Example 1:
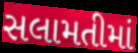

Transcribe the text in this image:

સલામતીમાં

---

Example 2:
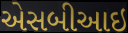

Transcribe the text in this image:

એસબીઆઇ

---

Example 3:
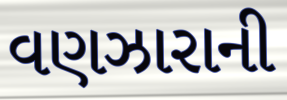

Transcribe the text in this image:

વણઝારાની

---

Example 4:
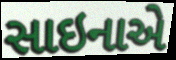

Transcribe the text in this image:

સાઇનાએ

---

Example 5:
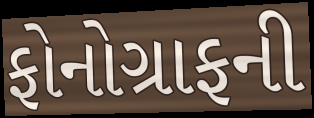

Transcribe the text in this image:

ફોનોગ્રાફની